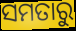
ସମତାରୁ